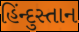
હિંન્દુસ્તાન